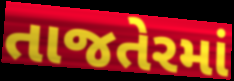
તાજતેરમાં